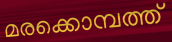
മരക്കൊമ്പത്ത്